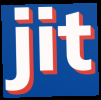
jit